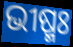
ଭୀଷ୍ମଃ